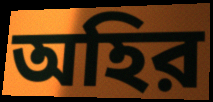
অহির